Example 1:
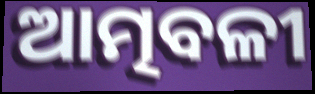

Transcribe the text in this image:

ଆତ୍ମବଳୀ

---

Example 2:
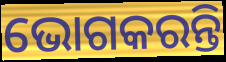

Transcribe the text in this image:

ଭୋଗକରନ୍ତି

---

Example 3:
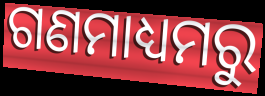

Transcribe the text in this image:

ଗଣମାଧ୍ୟମରୁ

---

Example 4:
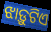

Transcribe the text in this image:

ଝାଡ଼ୁଟିଏ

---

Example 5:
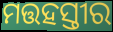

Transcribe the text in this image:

ମତ୍ତହସ୍ତୀର